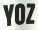
YOZ